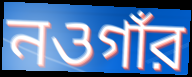
নওগাঁর